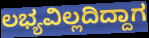
ಲಭ್ಯವಿಲ್ಲದಿದ್ದಾಗ